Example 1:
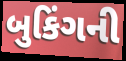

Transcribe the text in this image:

બુકિંગની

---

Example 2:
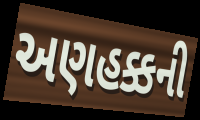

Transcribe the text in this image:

અણહક્કની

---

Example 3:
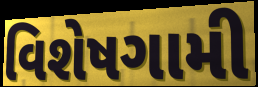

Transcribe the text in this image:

વિશેષગામી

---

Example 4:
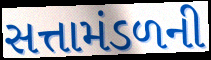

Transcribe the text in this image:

સત્તામંડળની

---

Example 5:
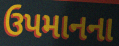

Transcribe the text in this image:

ઉપમાનના